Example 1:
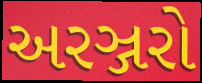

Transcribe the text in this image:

અરઞ્જરો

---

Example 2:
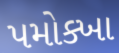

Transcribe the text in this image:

પમોક્ખા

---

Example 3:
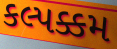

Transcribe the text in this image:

કલ્પક્કમ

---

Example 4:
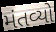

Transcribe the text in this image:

મંતવ્યો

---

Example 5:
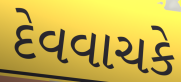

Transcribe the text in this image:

દેવવાચકે